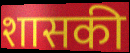
शासकी